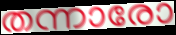
തന്നാരോ